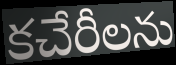
కచేరీలను